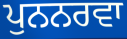
ਪੁਨਨਰਵਾ